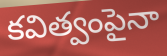
కవిత్వంపైనా